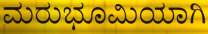
ಮರುಭೂಮಿಯಾಗಿ